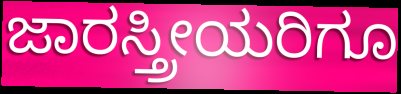
ಜಾರಸ್ತ್ರೀಯರಿಗೂ